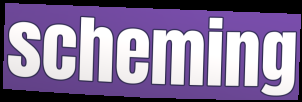
scheming